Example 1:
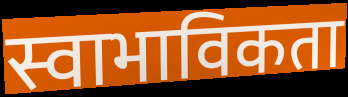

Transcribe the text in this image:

स्वाभाविकता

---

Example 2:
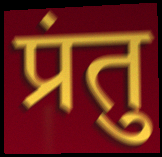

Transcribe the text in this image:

प्रंतु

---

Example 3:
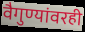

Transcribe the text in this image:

वैगुण्यांवरही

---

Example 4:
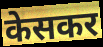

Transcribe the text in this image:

केसकर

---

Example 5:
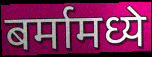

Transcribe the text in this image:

बर्मामध्ये